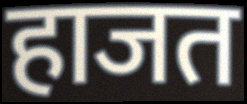
हाजत